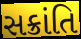
સક્રાંતિ